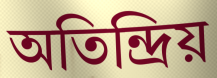
অতিন্দ্রিয়